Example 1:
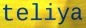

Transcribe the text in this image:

teliya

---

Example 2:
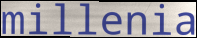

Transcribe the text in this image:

millenia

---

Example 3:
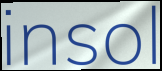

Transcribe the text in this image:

insol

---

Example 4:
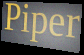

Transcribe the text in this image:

Piper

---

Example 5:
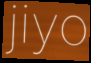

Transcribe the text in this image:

jiyo